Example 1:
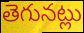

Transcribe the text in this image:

తెగునట్లు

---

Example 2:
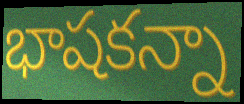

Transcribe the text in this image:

భాషకన్నా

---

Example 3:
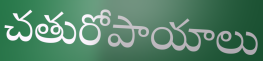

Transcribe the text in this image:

చతురోపాయాలు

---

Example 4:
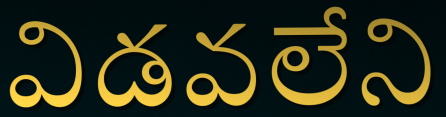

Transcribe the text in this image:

విడవలేని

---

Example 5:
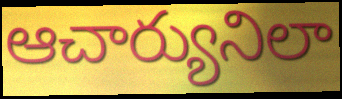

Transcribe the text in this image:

ఆచార్యునిలా